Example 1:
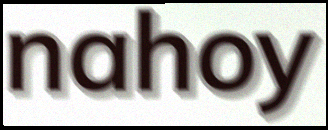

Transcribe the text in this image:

nahoy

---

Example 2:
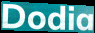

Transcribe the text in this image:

Dodia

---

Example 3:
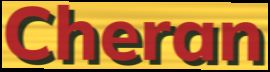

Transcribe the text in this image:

Cheran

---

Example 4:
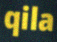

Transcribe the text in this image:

qila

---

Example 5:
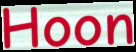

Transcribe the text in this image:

Hoon